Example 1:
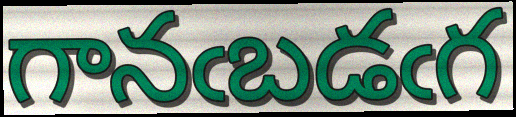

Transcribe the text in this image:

గానఁబడఁగ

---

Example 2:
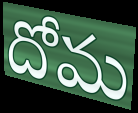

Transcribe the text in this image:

దోమ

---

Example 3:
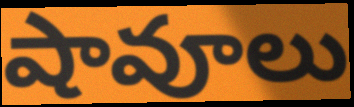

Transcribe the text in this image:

షావూలు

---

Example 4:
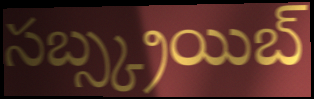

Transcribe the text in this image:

సబ్స్క్రయిబ్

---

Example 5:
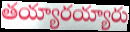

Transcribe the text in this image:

తయ్యారయ్యారు